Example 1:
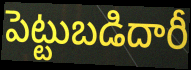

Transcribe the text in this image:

పెట్టుబడిదారీ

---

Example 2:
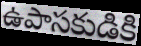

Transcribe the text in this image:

ఉపాసకుడికి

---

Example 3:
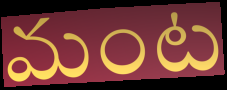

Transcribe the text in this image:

మంట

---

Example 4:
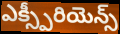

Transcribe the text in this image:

ఎక్స్పీరియెన్స్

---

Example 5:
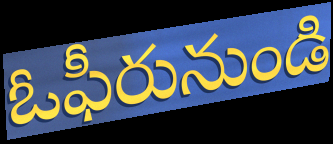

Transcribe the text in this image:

ఓఫీరునుండి